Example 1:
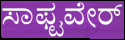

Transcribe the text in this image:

ಸಾಫ್ಟವೇರ್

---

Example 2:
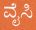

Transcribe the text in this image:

ವೈಸಿ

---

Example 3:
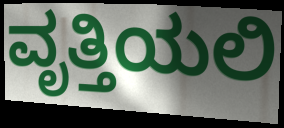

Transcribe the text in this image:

ವೃತ್ತಿಯಲಿ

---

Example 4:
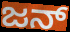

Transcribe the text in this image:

ಜನ್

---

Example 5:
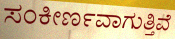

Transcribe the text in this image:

ಸಂಕೀರ್ಣವಾಗುತ್ತಿವೆ